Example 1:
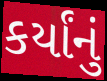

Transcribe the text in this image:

કર્યાંનું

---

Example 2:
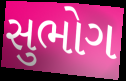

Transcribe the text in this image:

સુભોગ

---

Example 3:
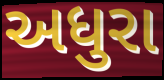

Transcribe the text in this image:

અધુરા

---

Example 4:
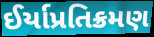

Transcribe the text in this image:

ઈર્યાપ્રતિક્રમણ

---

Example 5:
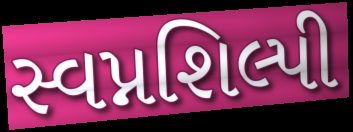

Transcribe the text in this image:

સ્વપ્નશિલ્પી